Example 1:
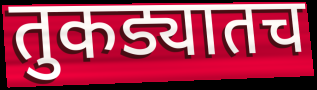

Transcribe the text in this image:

तुकड्यातच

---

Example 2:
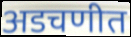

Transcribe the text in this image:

अडचणीत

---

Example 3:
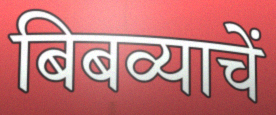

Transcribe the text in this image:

बिबव्याचें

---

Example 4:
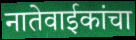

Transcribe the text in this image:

नातेवाईकांचा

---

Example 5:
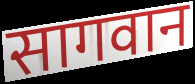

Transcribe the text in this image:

सागवान